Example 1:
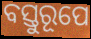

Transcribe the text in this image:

ବସ୍ତୁରୂପେ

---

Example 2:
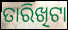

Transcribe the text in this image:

ତାରିଖିଟା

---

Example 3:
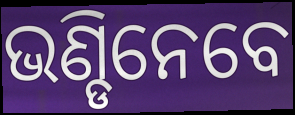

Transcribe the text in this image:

ଭଣ୍ଡିନେବେ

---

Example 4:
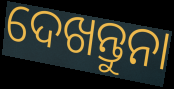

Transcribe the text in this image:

ଦେଖନ୍ତୁନା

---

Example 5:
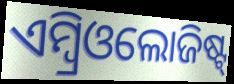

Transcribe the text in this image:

ଏମ୍ବ୍ରିଓଲୋଜିଷ୍ଟ୍